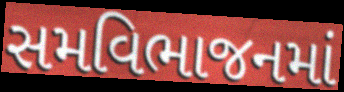
સમવિભાજનમાં